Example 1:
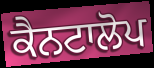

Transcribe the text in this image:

ਕੈਨਟਾਲੋਪ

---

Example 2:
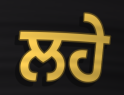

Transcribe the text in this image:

ਲਹੇ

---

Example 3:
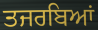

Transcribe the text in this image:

ਤਜਰਬਿਆਂ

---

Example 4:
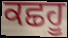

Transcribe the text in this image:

ਕਛਹੂ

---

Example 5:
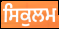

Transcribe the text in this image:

ਸਿਕੁਲਮ